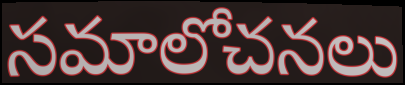
సమాలోచనలు